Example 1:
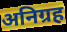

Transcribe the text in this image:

अनिग्रह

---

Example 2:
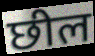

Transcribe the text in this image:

छील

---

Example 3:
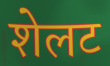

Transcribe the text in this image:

शेलट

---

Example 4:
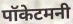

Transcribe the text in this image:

पॉकेटमनी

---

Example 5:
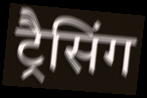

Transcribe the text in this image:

ट्रैसिंग